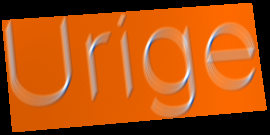
Urige